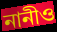
নানীও